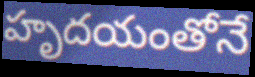
హృదయంతోనే